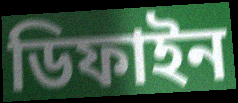
ডিফাইন